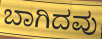
ಬಾಗಿದವು